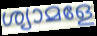
ശ്യാമളേ